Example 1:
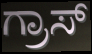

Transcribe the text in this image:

ಗ್ರಾಸ್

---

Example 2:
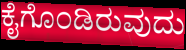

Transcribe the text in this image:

ಕೈಗೊಂಡಿರುವುದು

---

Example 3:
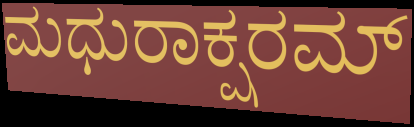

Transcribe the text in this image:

ಮಧುರಾಕ್ಷರಮ್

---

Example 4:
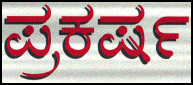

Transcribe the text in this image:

ಪ್ರಕರ್ಷ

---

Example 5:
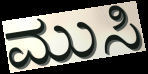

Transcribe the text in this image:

ಮುಸಿ